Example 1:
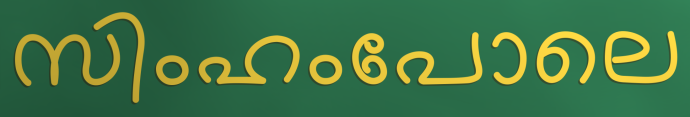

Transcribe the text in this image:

സിംഹംപോലെ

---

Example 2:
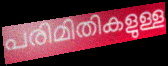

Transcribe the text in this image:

പരിമിതികളുള്ള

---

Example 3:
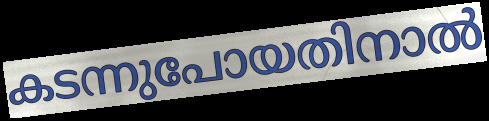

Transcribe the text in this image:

കടന്നുപോയതിനാൽ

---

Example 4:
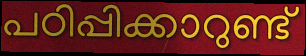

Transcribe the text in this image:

പഠിപ്പിക്കാറുണ്ട്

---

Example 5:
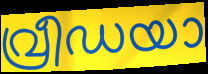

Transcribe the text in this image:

വ്രീഡയാ